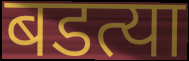
बडत्या